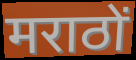
मराठों